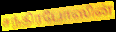
சந்திரபோஸின்